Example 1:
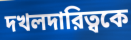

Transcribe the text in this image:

দখলদারিত্বকে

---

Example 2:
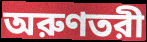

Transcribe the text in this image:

অরুণতরী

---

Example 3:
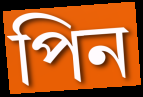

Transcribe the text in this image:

পিন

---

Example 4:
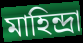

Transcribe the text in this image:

মাহিন্দ্রা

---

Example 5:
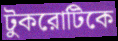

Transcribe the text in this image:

টুকরোটিকে